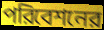
পরিবেশনের